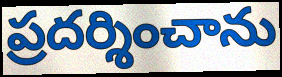
ప్రదర్శించాను